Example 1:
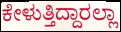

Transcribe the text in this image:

ಕೇಳುತ್ತಿದ್ದಾರಲ್ಲಾ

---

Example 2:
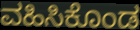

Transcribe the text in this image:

ವಹಿಸಿಕೊಂಡ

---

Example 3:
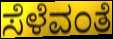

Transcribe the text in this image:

ಸೆಳೆವಂತೆ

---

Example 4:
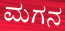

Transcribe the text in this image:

ಮಗನ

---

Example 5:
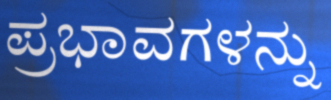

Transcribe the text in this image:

ಪ್ರಭಾವಗಳನ್ನು